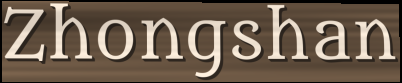
Zhongshan